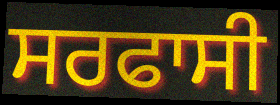
ਸਰਫਾਸੀ